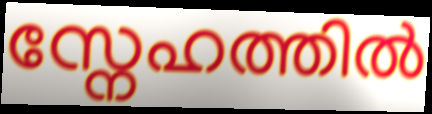
സ്നേഹത്തിൽ